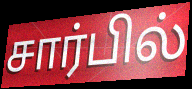
சார்பில்